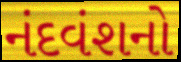
નંદવંશનો